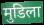
मुडिला